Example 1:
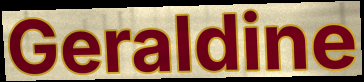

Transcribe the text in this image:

Geraldine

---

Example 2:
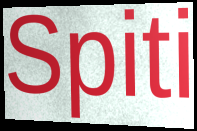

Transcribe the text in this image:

Spiti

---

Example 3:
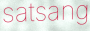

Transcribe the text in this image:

satsang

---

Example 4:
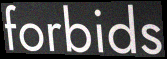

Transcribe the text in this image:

forbids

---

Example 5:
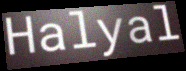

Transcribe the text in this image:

Halyal